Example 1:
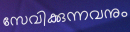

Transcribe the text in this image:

സേവിക്കുന്നവനും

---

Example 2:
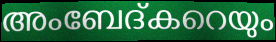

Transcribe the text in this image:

അംബേദ്കറെയും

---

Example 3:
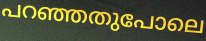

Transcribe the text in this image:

പറഞ്ഞതുപോലെ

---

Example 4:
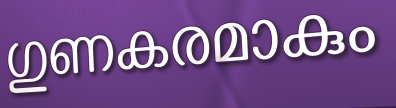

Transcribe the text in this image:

ഗുണകരമാകും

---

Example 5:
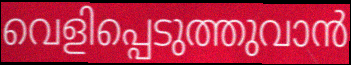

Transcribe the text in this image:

വെളിപ്പെടുത്തുവാൻ